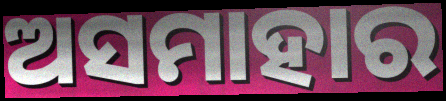
ଅସମାହାର